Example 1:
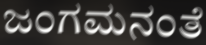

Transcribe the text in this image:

ಜಂಗಮನಂತೆ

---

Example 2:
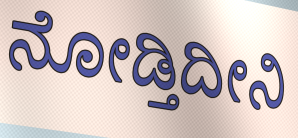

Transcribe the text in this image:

ನೋಡ್ತಿದೀನಿ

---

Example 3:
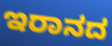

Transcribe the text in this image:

ಇರಾನದ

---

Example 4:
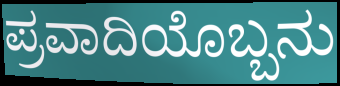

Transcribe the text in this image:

ಪ್ರವಾದಿಯೊಬ್ಬನು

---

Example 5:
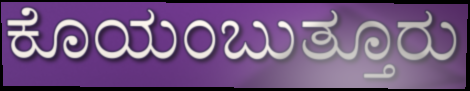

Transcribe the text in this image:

ಕೊಯಂಬುತ್ತೂರು